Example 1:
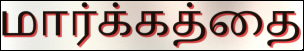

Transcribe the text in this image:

மார்க்கத்தை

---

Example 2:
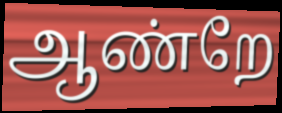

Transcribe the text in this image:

ஆண்றே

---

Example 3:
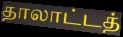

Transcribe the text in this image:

தாலாட்டத்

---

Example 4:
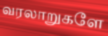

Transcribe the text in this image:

வரலாறுகளே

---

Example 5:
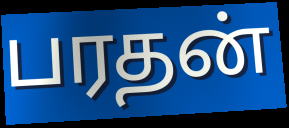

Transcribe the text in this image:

பரதன்